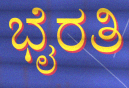
ಭೈರತಿ